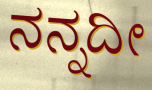
ನನ್ನದೀ